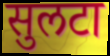
सुलटा